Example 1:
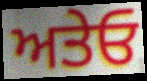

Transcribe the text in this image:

ਅਤੇਓ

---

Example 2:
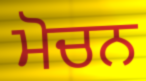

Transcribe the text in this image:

ਮੋਚਨ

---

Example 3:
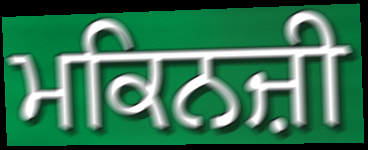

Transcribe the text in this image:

ਮਕਿਨਜ਼ੀ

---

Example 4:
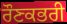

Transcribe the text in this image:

ਰੌਣਕਭਰੀ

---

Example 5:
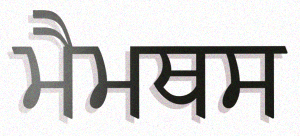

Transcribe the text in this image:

ਮੈਮਥਸ